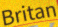
Britan